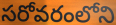
సరోవరంలోని